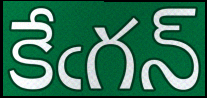
కేఁగన్